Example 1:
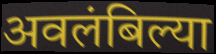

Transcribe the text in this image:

अवलंबिल्या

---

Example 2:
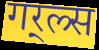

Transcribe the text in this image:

गर्ल्स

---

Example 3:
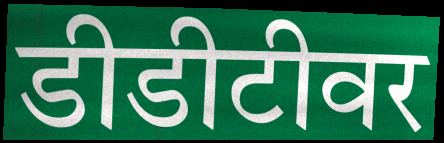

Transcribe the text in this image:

डीडीटीवर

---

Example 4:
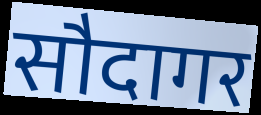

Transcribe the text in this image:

सौदागर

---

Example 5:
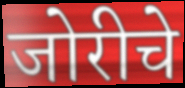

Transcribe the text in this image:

जोरीचे